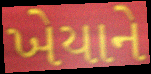
ખેયાને